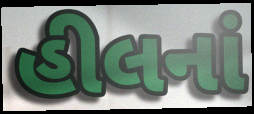
હીલનાં